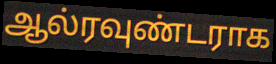
ஆல்ரவுண்டராக